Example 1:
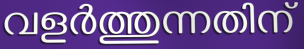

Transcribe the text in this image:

വളർത്തുന്നതിന്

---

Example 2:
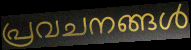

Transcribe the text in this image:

പ്രവചനങ്ങൾ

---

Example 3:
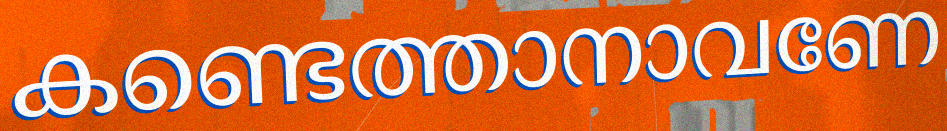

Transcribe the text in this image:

കണ്ടെത്താനാവണേ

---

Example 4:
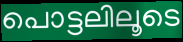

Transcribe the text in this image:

പൊട്ടലിലൂടെ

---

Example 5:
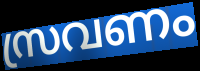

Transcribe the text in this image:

സ്രവണം